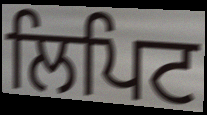
ਲਿਪਿਟ